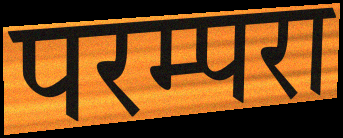
परम्परा